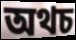
অথচ